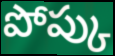
పోప్కు